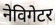
नेविगेटर